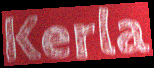
Kerla